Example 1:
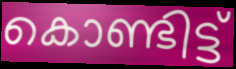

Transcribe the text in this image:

കൊണ്ടിട്ട്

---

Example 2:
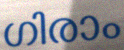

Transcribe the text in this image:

ഗിരാം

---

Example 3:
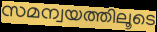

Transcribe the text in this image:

സമന്വയത്തിലൂടെ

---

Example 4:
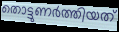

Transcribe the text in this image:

തൊട്ടുണർത്തിയത്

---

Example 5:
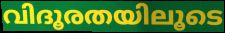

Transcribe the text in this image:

വിദൂരതയിലൂടെ